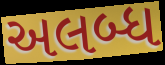
અલબ્ધ